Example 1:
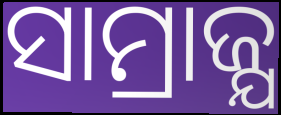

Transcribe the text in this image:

ସାମ୍ରାଜ୍ଯ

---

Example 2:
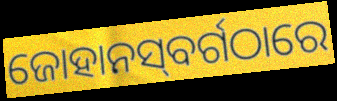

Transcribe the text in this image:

ଜୋହାନସ୍‌ବର୍ଗଠାରେ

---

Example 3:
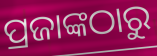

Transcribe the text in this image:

ପ୍ରଜାଙ୍କଠାରୁ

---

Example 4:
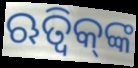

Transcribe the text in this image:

ଋତ୍ୱିକ୍‌ଙ୍କ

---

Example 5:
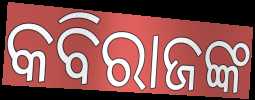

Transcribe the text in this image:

କବିରାଜଙ୍କ